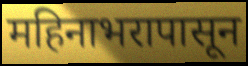
महिनाभरापासून